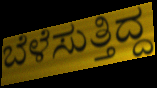
ಬೆಳೆಸುತ್ತಿದ್ದ